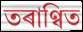
তৰাণ্বিত